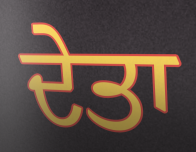
ਦੇਤਾ